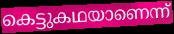
കെട്ടുകഥയാണെന്ന്